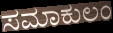
ಸಮಾಕುಲಂ